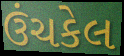
ઉંચકેલ